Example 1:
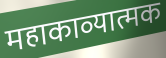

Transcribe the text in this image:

महाकाव्‍यात्‍मक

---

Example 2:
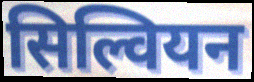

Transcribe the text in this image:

सिल्वियन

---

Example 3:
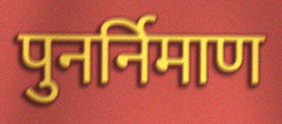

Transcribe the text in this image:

पुनर्निमाण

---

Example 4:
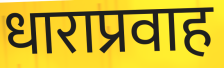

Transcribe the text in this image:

धाराप्रवाह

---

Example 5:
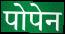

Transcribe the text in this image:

पोपेन